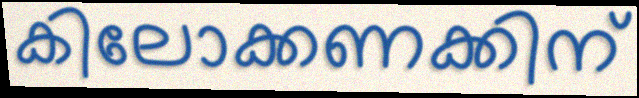
കിലോക്കണക്കിന്